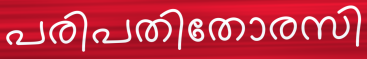
പരിപതിതോരസി